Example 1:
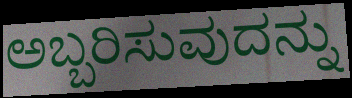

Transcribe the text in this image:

ಅಬ್ಬರಿಸುವುದನ್ನು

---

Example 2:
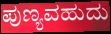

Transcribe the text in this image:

ಪುಣ್ಯವಹುದು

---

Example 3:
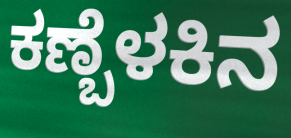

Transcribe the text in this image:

ಕಣ್ಬೆಳಕಿನ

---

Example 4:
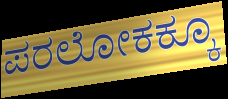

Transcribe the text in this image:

ಪರಲೋಕಕ್ಕೂ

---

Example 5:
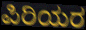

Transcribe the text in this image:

ಪಿರಿಯರ